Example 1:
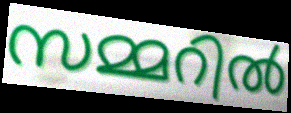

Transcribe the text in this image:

സമ്മറിൽ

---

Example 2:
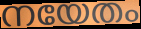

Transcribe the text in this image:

നയേതം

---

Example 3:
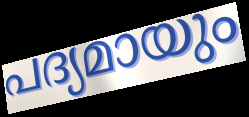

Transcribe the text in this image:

പദ്യമായും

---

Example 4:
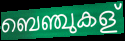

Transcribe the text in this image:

ബെഞ്ചുകള്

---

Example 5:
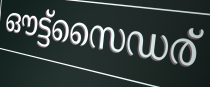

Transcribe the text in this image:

ഔട്ട്സൈഡര്